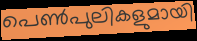
പെൺപുലികളുമായി